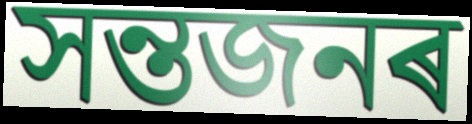
সন্তজনৰ